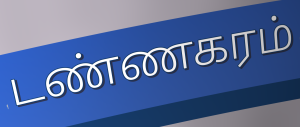
டண்ணகரம்